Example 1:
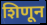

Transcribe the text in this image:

शिणून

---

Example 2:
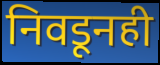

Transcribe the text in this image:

निवडूनही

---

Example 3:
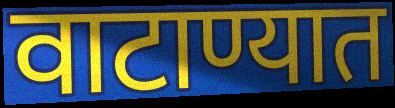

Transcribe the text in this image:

वाटाण्यात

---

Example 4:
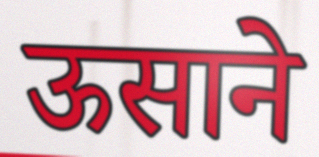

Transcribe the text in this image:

ऊसाने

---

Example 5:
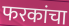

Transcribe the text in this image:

फरकांचा